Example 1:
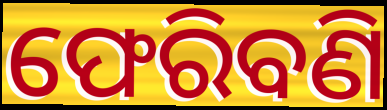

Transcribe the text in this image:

ଫେରିବଣି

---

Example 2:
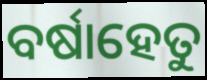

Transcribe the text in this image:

ବର୍ଷାହେତୁ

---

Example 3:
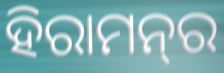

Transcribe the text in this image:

ହିରାମନ୍‍ର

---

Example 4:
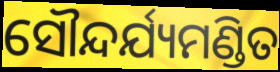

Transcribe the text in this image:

ସୌନ୍ଦର୍ଯ୍ୟମଣ୍ଡିତ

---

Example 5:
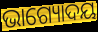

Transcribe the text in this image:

ଭାଗ୍ୟୋଦୟ